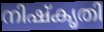
നിഷ്കൃതി